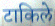
टाकिले